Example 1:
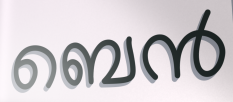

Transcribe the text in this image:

ബെൻ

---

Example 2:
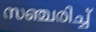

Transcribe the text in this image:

സഞ്ചരിച്ച്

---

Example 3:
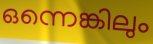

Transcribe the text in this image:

ഒന്നെങ്കിലും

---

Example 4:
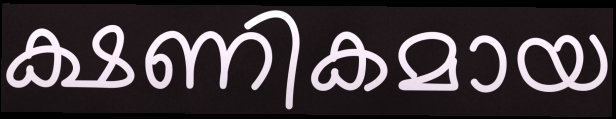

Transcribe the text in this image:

ക്ഷണികമായ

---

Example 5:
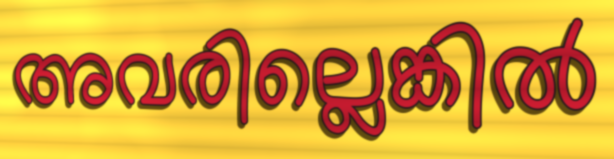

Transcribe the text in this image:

അവരില്ലെങ്കിൽ